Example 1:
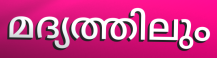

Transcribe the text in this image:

മദ്യത്തിലും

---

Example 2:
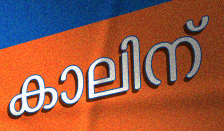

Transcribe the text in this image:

കാലിന്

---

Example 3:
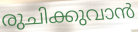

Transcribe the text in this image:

രുചിക്കുവാൻ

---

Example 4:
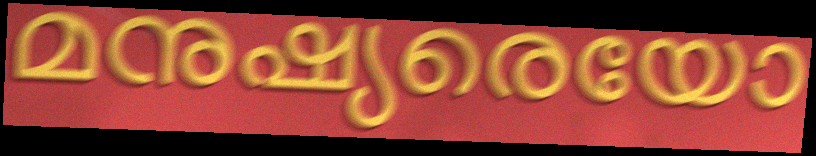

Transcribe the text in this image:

മനുഷ്യരെയോ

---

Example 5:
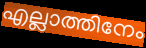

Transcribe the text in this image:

എല്ലാത്തിനേം